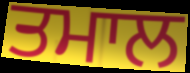
ਤਮਾਲ